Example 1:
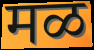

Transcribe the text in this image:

मळ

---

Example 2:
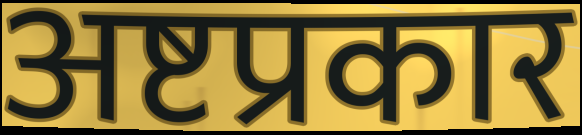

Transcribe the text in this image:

अष्टप्रकार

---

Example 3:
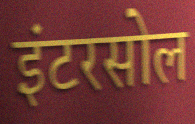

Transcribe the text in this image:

इंटरसोल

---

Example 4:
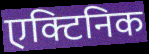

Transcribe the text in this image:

एक्टिनिक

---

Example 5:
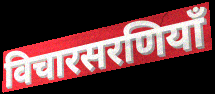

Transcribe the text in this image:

विचारसरणियाँ